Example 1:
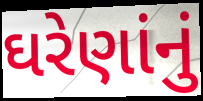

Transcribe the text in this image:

ઘરેણાંનું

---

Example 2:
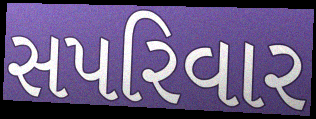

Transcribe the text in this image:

સપરિવાર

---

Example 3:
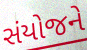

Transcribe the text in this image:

સંયોજને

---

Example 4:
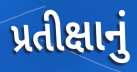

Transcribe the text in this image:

પ્રતીક્ષાનું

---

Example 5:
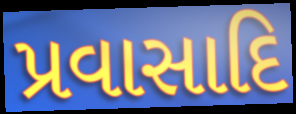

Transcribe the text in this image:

પ્રવાસાદિ